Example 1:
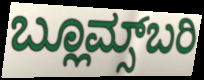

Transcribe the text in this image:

ಬ್ಲೂಮ್ಸ್‌ಬರಿ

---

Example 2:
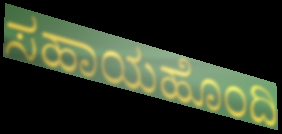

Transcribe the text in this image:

ಸಹಾಯಹೊಂದಿ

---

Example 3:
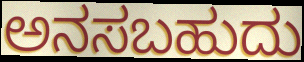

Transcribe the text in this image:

ಅನಸಬಹುದು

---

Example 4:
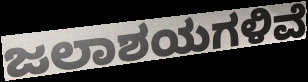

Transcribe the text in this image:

ಜಲಾಶಯಗಳಿವೆ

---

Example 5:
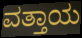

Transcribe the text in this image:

ವತ್ತಾಯ